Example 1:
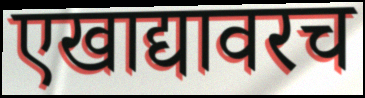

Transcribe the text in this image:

एखाद्यावरच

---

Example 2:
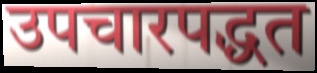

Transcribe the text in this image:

उपचारपद्धत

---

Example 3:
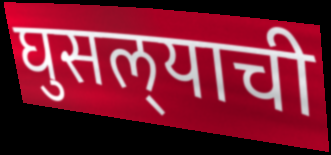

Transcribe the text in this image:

घुसल्याची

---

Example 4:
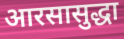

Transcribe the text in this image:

आरसासुद्धा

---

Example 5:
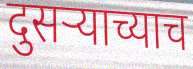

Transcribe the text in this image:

दुसऱ्याच्याच